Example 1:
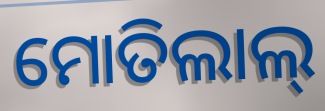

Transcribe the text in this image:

ମୋତିଲାଲ୍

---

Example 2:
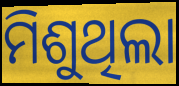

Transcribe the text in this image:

ମିଶୁଥିଲା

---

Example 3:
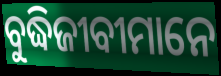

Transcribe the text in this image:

ବୁଦ୍ଧିଜୀବୀମାନେ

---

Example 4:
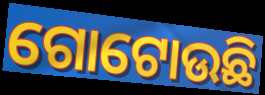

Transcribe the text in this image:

ଗୋଟୋଉଛି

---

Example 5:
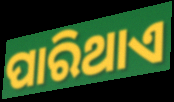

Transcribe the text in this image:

ପାରିଥାଏ